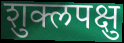
शुक्लपक्षु